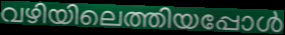
വഴിയിലെത്തിയപ്പോൾ